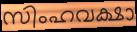
സിംഹവക്ഷാ